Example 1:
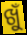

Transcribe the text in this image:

ଖୁଁ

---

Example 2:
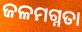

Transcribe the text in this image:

ଜଳମଗ୍ନତା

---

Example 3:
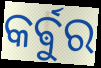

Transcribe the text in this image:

କର୍ଵୁର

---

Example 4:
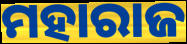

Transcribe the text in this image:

ମହାରାଜ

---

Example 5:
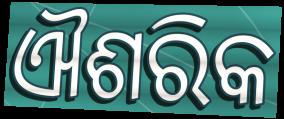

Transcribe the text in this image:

ଐଶରିକ